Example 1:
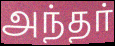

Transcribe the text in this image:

அந்தர்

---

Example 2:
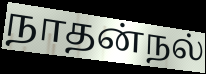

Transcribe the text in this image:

நாதன்நல்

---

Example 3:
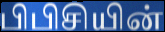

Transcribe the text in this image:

பிபிசியின்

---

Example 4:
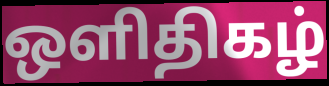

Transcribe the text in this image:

ஒளிதிகழ்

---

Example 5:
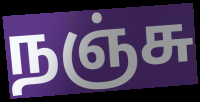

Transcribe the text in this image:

நஞ்சு